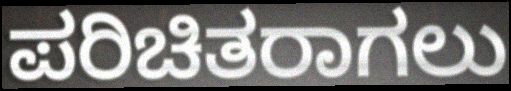
ಪರಿಚಿತರಾಗಲು